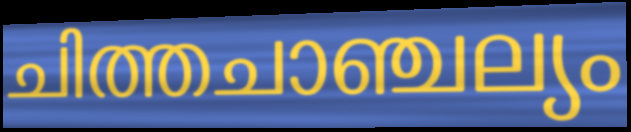
ചിത്തചാഞ്ചല്യം